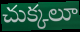
చుక్కలూ